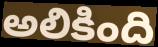
అలికింది